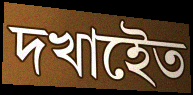
দখাইেত